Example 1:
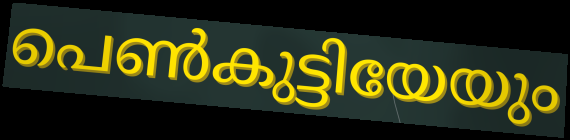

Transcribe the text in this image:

പെൺകുട്ടിയേയും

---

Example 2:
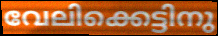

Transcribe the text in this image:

വേലിക്കെട്ടിനു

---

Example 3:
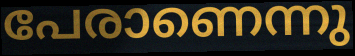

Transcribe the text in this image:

പേരാണെന്നു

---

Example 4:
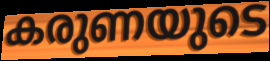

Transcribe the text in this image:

കരുണയുടെ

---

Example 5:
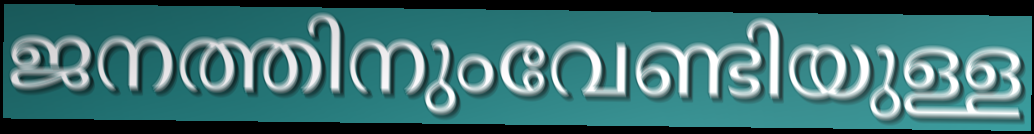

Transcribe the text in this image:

ജനത്തിനുംവേണ്ടിയുള്ള